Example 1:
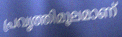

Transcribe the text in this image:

പ്രവൃത്തിമൂലമാണ്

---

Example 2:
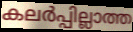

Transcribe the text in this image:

കലർപ്പില്ലാത്ത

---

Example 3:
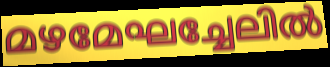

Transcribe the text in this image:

മഴമേഘച്ചേലിൽ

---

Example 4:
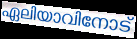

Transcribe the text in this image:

ഏലിയാവിനോട്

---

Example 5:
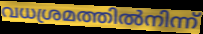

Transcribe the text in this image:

വധശ്രമത്തിൽനിന്ന്